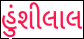
હુંશીલાલ